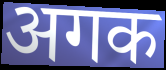
अगक